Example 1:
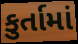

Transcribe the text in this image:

કુર્તામાં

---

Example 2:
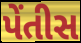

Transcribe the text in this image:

પેંતીસ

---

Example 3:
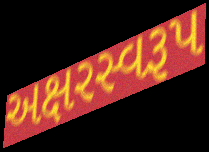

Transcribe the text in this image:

અક્ષરસ્વરૂપ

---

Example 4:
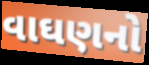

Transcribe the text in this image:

વાઘણનો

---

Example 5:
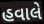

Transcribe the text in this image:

હવાલે